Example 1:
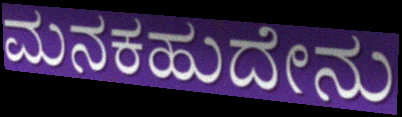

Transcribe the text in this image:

ಮನಕಹುದೇನು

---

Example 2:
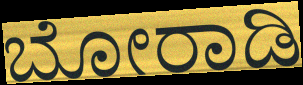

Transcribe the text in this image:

ಬೋರಾಡಿ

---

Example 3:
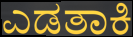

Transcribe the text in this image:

ಎಡತಾಕಿ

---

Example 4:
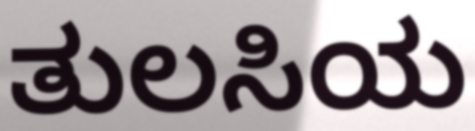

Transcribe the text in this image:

ತುಲಸಿಯ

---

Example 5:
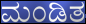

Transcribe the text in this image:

ಮಂಡಿತ